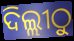
ଦିଲ୍ଲୀଠୁ